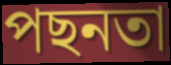
পছনতা